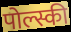
पोल्स्की